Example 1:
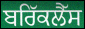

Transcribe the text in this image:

ਬਰਿੱਕਲੈੱਸ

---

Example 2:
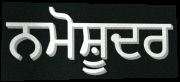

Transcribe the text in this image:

ਨਮੋਸ਼ੂਦਰ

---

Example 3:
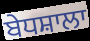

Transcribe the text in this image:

ਬੇਧਸ਼ਾਲਾ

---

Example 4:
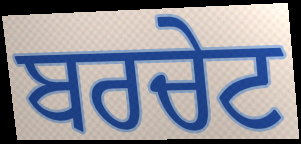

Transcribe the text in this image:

ਬਰਚੇਟ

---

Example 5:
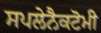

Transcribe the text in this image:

ਸਪਲੇਨੈਕਟੋਮੀ